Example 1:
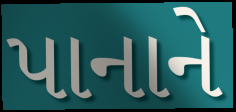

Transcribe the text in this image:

પાનાને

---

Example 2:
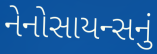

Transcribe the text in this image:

નેનોસાયન્સનું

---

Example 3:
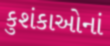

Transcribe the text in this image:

કુશંકાઓનાં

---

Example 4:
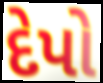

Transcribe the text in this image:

દેપો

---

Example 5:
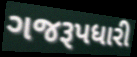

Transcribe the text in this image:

ગજરૂપધારી